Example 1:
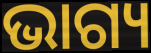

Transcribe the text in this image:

ଭାଗ୍ୟ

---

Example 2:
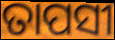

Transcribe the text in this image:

ତାପସୀ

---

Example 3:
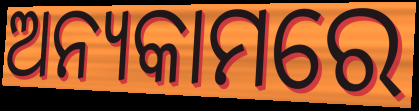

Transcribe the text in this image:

ଅନ୍ୟକାମରେ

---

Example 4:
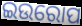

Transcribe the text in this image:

ଇଉରୋପ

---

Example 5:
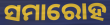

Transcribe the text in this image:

ସମାରୋହ